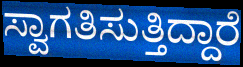
ಸ್ವಾಗತಿಸುತ್ತಿದ್ದಾರೆ